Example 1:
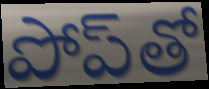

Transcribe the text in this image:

పోప్‌తో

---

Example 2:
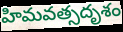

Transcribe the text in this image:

హిమవత్సదృశం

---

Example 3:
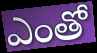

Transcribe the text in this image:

ఎంతో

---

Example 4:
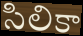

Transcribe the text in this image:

సిలికా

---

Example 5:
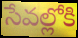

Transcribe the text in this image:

సేవల్లోకి